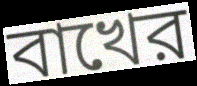
বাখের